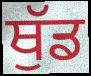
ਥੁੱਡ